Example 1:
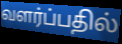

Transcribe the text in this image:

வளர்ப்பதில்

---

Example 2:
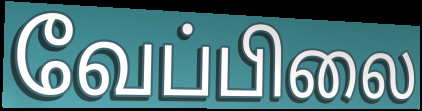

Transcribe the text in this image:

வேப்பிலை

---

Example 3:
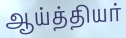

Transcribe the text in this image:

ஆய்த்தியர்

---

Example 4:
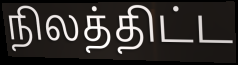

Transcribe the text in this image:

நிலத்திட்ட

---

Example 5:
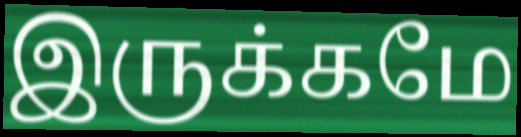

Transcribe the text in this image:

இருக்கமே